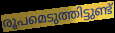
രൂപമെടുത്തിട്ടുണ്ട്